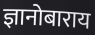
ज्ञानोबाराय